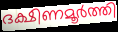
ദക്ഷിണമൂർത്തി